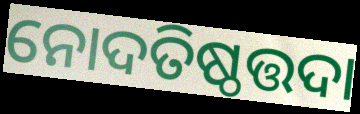
ନୋଦତିଷ୍ଠତ୍ତଦା